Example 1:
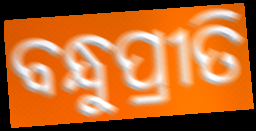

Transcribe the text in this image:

ବନ୍ଧୁପ୍ରୀତି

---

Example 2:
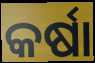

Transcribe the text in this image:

କର୍ଷା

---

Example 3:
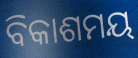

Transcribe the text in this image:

ବିକାଶମୟ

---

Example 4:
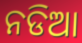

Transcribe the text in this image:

ନଡିଆ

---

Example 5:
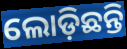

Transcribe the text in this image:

ଲୋଡ଼ିଛନ୍ତି